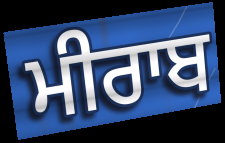
ਮੀਰਾਬ